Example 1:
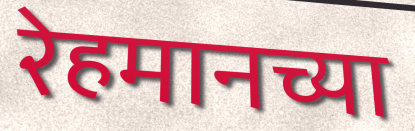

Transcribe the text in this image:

रेहमानच्या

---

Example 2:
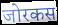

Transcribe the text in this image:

जोरकस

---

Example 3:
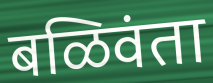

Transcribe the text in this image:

बळिवंता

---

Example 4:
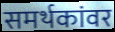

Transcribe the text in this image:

समर्थकांवर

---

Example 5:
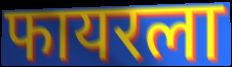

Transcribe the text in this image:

फायरला